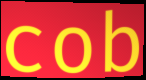
cob